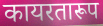
कायरतारूप